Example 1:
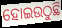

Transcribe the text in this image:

ହୋଇଉଠୁଛି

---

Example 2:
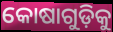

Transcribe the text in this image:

କୋଷାଗୁଡ଼ିକୁ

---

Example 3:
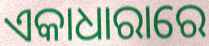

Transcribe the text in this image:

ଏକାଧାରାରେ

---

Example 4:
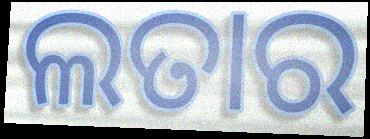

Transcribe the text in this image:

ଲତାର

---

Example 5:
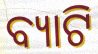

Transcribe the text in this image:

ବ୍ୟାଟି